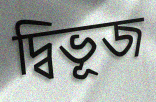
দ্বিভূজ